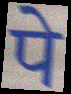
पे